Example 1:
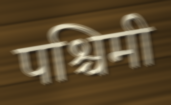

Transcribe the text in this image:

पश्चिमी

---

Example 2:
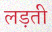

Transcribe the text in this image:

लड़ती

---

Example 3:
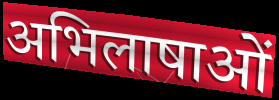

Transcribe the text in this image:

अभिलाषाओं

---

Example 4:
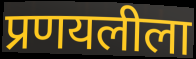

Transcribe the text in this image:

प्रणयलीला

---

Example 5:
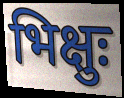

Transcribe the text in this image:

भिक्षुः